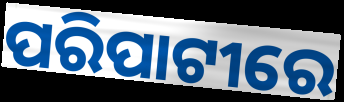
ପରିପାଟୀରେ